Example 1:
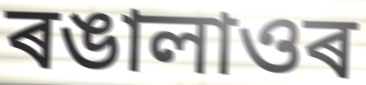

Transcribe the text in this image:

ৰঙালাওৰ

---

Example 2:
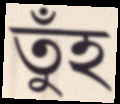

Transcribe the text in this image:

তুঁহ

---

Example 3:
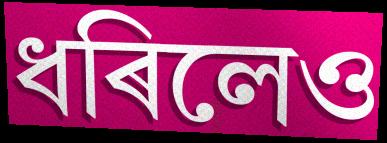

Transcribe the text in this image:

ধৰিলেও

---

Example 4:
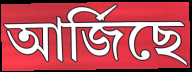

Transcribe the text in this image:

আৰ্জিছে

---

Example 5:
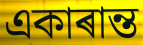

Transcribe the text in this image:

একাৰান্ত